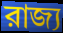
রাজ্য